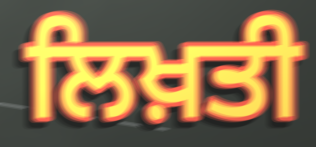
ਲਿਖ਼ਤੀ